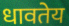
धावतेय